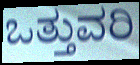
ಒತ್ತುವರಿ